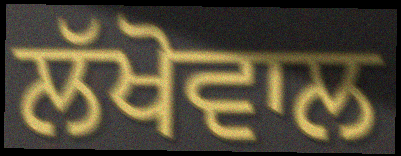
ਲੱਖੋਵਾਲ